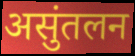
असुंतलन